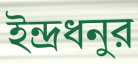
ইন্দ্রধনুর